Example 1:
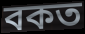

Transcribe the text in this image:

বকত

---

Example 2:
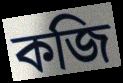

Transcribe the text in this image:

কজি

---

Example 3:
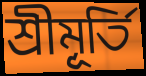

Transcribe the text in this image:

শ্রীমূর্তি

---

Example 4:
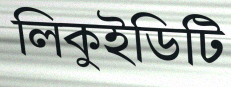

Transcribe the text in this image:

লিকুইডিটি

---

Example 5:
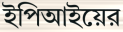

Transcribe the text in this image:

ইপিআইয়ের